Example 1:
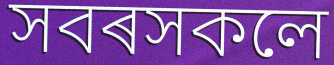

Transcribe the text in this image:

সবৰসকলে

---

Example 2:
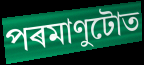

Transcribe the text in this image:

পৰমাণুটোত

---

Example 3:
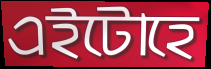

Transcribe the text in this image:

এইটোহে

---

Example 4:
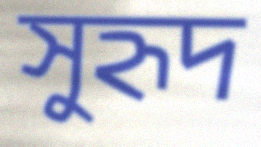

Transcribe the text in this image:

সুহৃদ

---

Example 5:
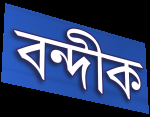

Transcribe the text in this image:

বন্দীক